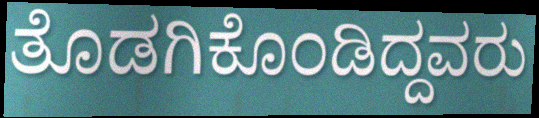
ತೊಡಗಿಕೊಂಡಿದ್ದವರು